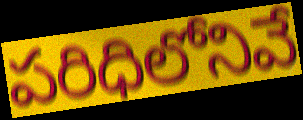
పరిధిలోనివే